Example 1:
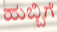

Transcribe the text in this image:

ಹುಬ್ಬಿಗೆ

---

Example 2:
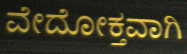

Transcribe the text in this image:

ವೇದೋಕ್ತವಾಗಿ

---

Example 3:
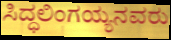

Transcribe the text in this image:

ಸಿದ್ಧಲಿಂಗಯ್ಯನವರು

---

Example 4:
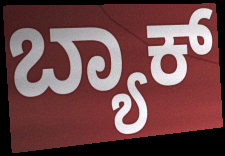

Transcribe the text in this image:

ಬ್ಯಾಕ್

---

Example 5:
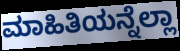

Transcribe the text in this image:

ಮಾಹಿತಿಯನ್ನೆಲ್ಲಾ